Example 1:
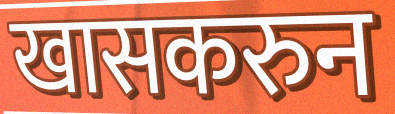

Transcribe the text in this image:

खासकरुन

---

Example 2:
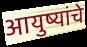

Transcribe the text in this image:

आयुष्यांचे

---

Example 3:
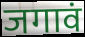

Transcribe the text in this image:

जगावं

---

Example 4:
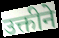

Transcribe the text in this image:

उक्तीने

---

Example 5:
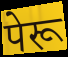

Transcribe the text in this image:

पेरू